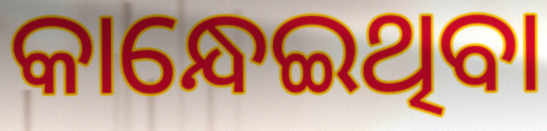
କାନ୍ଧେଇଥିବା